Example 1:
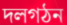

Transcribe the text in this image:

দলগঠন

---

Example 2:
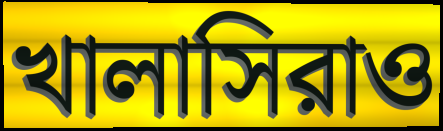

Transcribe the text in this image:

খালাসিরাও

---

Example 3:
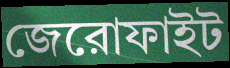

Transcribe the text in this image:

জেরোফাইট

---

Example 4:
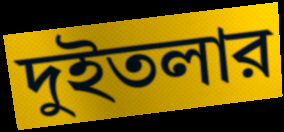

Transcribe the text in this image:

দুইতলার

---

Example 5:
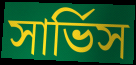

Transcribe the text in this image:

সার্ভিস